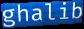
ghalib